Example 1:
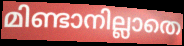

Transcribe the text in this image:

മിണ്ടാനില്ലാതെ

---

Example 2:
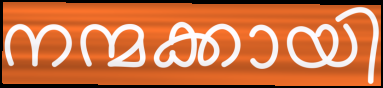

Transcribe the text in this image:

നന്മക്കായി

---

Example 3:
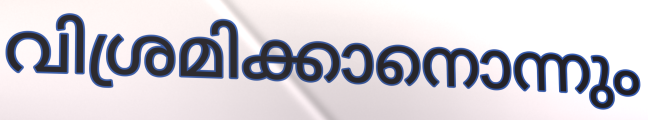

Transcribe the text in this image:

വിശ്രമിക്കാനൊന്നും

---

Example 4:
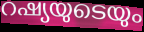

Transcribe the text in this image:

റഷ്യയുടെയും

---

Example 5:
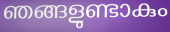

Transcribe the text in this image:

ഞങ്ങളുണ്ടാകും